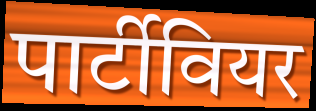
पार्टीवियर